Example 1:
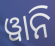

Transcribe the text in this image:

ୱାନି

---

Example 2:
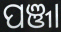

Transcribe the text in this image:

ପଞ୍ଜା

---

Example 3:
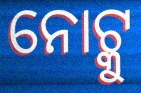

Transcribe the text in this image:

ନୋଟ୍କୁ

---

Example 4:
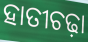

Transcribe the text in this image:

ହାତୀଚଢ଼ା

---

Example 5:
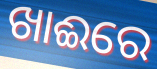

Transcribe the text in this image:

ଖାଈରେ